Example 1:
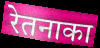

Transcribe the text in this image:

रेतनाका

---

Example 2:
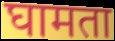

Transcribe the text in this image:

घामता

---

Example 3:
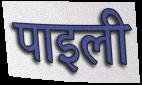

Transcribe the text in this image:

पाइली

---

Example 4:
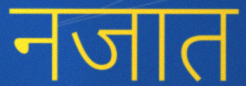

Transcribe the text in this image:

नजात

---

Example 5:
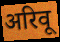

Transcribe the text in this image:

अरिवू